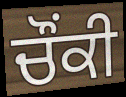
ਚੌਂਕੀ